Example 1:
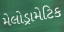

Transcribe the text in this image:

મેલોડ્રામેટિક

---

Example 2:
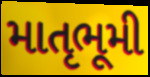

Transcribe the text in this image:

માતૃભૂમી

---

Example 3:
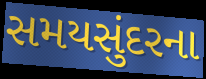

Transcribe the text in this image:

સમયસુંદરના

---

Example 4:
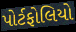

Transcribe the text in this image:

પોર્ટફોલિયો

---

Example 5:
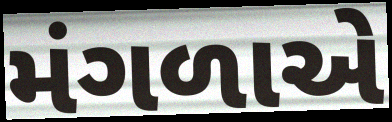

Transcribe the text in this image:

મંગળાએ